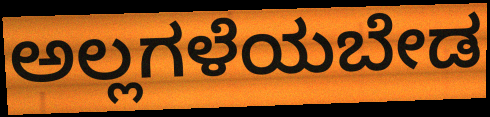
ಅಲ್ಲಗಳೆಯಬೇಡ